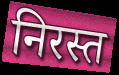
निरस्त